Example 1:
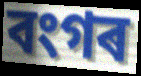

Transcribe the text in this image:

বংগৰ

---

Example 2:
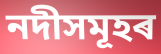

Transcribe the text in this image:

নদীসমূহৰ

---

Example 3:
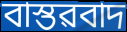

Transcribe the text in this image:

বাস্তৱবাদ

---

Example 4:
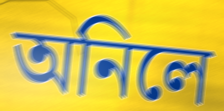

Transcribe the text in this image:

অনিলে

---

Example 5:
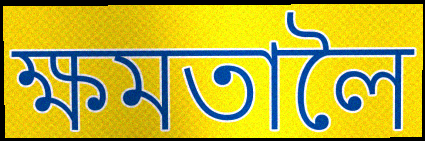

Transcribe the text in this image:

ক্ষমতালৈ